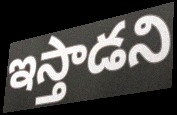
ఇస్తాడని